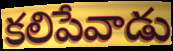
కలిపేవాడు